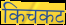
किचकट